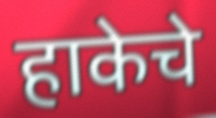
हाकेचे